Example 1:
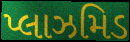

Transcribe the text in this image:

પ્લાઝમિડ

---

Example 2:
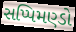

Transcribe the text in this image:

સપ્પિમણ્ડો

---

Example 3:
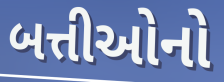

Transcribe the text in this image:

બત્તીઓનો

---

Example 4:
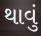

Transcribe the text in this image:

થાવું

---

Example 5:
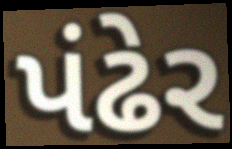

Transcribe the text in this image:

પંઢેર